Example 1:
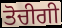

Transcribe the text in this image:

ਤੋਚੀਗੀ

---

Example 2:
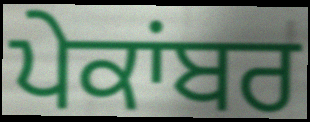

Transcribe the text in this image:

ਪੇਕਾਂਬਰ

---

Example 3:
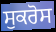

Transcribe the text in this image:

ਸੁਕਰੋਸ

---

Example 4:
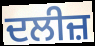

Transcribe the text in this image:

ਦਲੀਜ਼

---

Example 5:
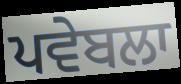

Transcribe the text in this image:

ਪਵੇਬਲਾ